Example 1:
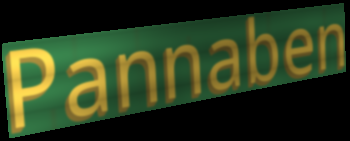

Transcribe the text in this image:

Pannaben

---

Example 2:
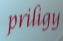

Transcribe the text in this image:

priligy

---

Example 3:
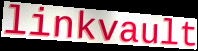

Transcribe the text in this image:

linkvault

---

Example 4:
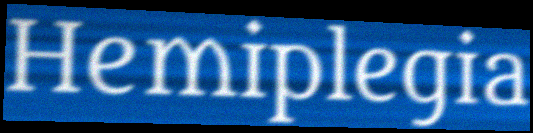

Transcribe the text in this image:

Hemiplegia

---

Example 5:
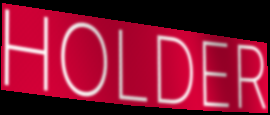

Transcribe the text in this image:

HOLDER